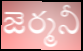
జెర్మనీ